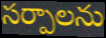
సర్పాలను